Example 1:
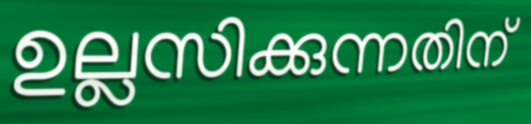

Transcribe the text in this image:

ഉല്ലസിക്കുന്നതിന്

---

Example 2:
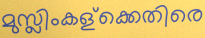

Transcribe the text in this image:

മുസ്ലിംകള്ക്കെതിരെ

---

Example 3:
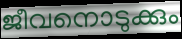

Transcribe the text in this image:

ജീവനൊടുക്കും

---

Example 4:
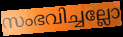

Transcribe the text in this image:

സംഭവിച്ചല്ലോ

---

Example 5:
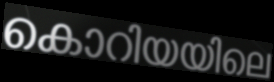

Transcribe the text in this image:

കൊറിയയിലെ